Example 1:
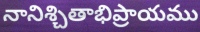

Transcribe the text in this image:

నానిశ్చితాభిప్రాయము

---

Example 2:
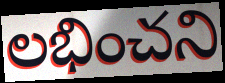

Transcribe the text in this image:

లభించని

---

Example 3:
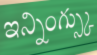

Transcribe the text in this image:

ఇన్నింగ్స్కు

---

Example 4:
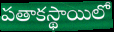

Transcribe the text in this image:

పతాకస్థాయిలో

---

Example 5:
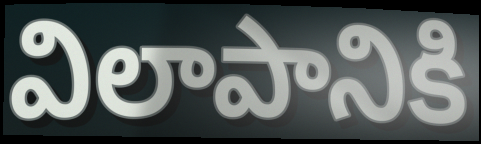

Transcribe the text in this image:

విలాపానికి